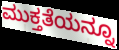
ಮುಕ್ತತೆಯನ್ನೂ